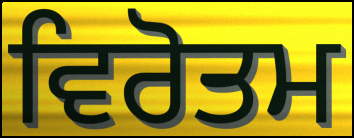
ਵਿਰੋਤਮ